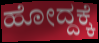
ಹೋದ್ದಕ್ಕೆ